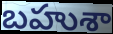
బహుశా